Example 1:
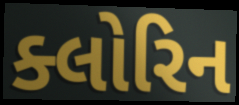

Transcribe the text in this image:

ક્લોરિન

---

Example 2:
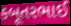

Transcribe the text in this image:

કબૂતરભાઈ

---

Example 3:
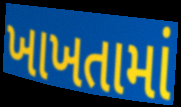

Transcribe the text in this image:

ખાખતામાં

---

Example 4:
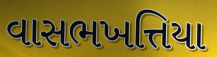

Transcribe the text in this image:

વાસભખત્તિયા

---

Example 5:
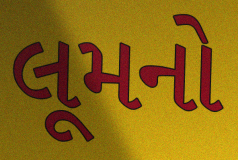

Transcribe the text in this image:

લૂમનો